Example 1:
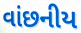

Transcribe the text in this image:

વાંછનીય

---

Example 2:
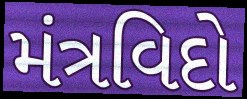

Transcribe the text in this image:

મંત્રવિદો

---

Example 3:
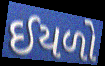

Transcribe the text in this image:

ઈયળો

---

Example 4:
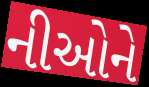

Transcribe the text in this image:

નીઓને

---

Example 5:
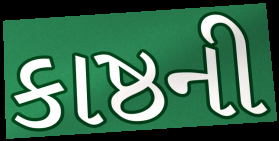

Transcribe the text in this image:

કાષ્ઠની